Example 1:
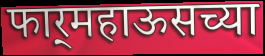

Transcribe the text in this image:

फार्महाऊसच्या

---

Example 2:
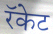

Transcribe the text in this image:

रॅकेट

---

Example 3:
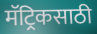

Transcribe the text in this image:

मॅट्रिकसाठी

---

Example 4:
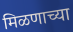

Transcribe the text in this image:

मिळणाच्या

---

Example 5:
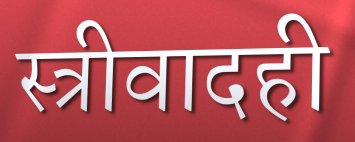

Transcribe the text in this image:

स्त्रीवादही